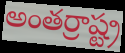
అంతర్రాష్ట్ర